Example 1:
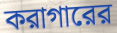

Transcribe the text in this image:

করাগারের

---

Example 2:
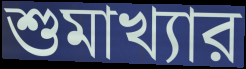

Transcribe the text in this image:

শুমাখ্যার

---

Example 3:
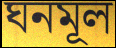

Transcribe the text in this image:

ঘনমূল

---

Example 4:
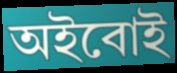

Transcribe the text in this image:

অইবোই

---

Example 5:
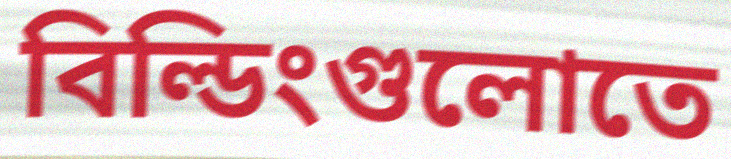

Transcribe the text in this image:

বিল্ডিংগুলোতে